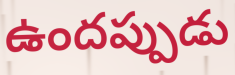
ఉందప్పుడు